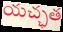
యచ్ఛత